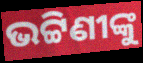
ଭଟ୍ଟିଣୀଙ୍କୁ